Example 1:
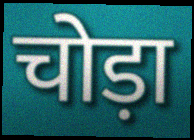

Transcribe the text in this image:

चोड़ा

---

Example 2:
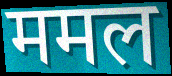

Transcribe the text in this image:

ममल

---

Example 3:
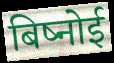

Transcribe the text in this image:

बिष्नोई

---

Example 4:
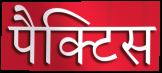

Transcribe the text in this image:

पैक्टिस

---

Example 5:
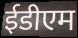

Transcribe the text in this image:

ईडीएम